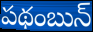
పథంబున్